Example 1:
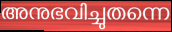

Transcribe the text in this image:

അനുഭവിച്ചുതന്നെ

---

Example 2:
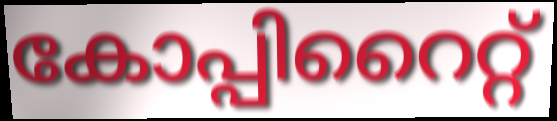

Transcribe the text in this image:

കോപ്പിറൈറ്റ്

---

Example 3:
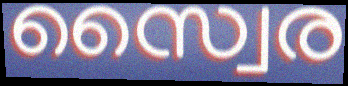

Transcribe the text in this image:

സ്വൈര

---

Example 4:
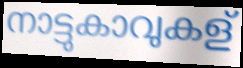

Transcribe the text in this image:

നാട്ടുകാവുകള്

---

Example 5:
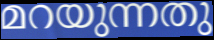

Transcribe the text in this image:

മറയുന്നതു